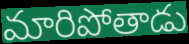
మారిపోతాడు